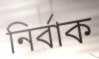
নির্বাক